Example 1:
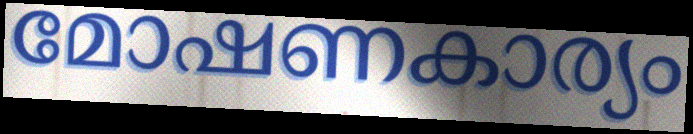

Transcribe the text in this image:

മോഷണകാര്യം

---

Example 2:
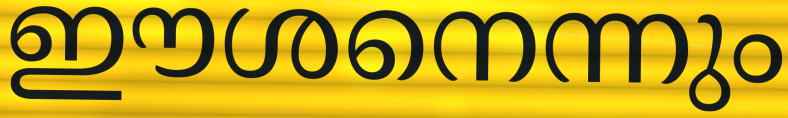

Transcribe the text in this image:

ഈശനെന്നും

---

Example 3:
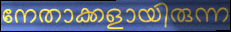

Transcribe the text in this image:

നേതാക്കളായിരുന്ന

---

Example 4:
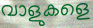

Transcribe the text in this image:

വാളുകളെ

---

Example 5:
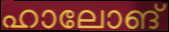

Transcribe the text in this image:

ഹാലോങ്